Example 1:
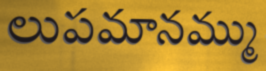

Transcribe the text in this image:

లుపమానమ్ము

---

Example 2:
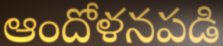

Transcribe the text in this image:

ఆందోళనపడి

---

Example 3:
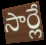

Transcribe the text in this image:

సార్లే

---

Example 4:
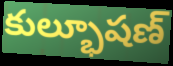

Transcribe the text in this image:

కుల్భూషణ్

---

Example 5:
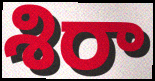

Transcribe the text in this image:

శిరా